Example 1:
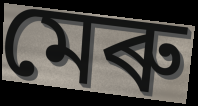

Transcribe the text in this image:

মেৰু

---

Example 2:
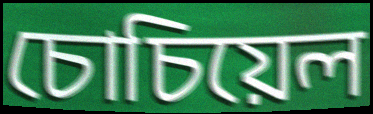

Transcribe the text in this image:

চোচিয়েল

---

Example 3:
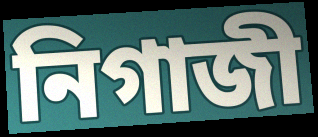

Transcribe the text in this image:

নিগাজী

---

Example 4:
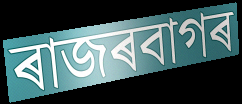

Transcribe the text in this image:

ৰাজৰবাগৰ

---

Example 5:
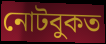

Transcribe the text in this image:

নোটবুকত